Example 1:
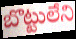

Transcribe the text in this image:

బొట్టులేని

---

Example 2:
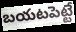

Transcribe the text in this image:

బయటపెట్టే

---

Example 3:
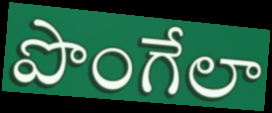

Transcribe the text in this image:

పొంగేలా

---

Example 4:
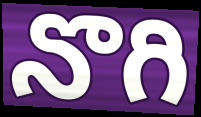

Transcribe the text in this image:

నొగి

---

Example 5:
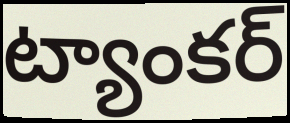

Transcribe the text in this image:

ట్యాంకర్